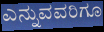
ಎನ್ನುವವರಿಗೂ